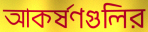
আকর্ষণগুলির